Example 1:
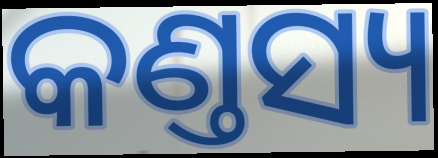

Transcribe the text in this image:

କଣ୍ତସ୍ୟ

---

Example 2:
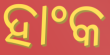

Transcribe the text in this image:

ହାଂକ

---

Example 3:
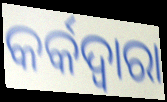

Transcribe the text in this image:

କର୍କଦ୍ଵାରା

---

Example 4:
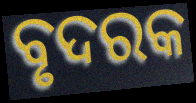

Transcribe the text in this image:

ବୃଦରକ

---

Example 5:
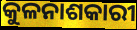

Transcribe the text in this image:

କୁଳନାଶକାରୀ